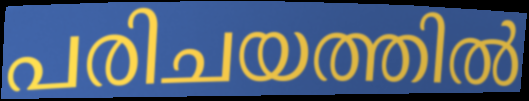
പരിചയത്തിൽ